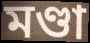
মণ্ডা